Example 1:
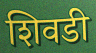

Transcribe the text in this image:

शिवडी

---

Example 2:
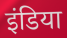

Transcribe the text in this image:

इंडिया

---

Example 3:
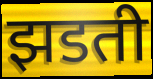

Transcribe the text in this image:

झडती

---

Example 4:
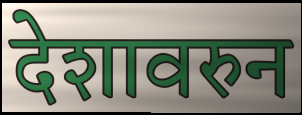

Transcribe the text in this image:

देशावरुन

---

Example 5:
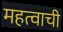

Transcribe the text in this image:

महत्वाची